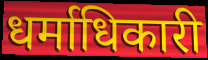
धर्माधिकारी